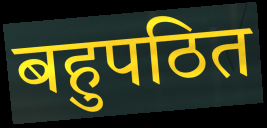
बहुपठित